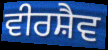
ਵੀਰਸ਼ੈਵ